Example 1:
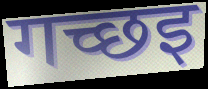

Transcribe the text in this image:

गच्छइ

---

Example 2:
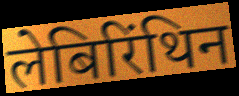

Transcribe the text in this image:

लेबिरिंथिन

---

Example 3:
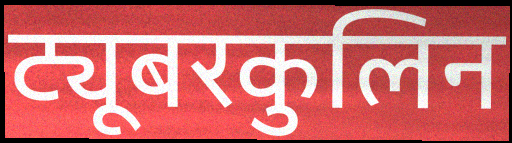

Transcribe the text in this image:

ट्यूबरकुलिन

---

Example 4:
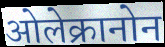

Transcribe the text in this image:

ओलेक्रानोन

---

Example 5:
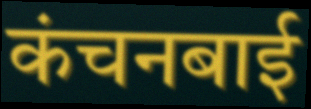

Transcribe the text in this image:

कंचनबाई